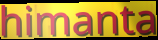
himanta